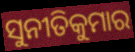
ସୁନୀତିକୁମାର